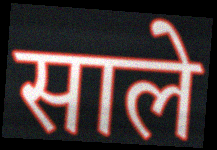
साले